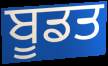
ਬੂਡਤ